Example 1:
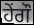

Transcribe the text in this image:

ਹੇਂਗੌ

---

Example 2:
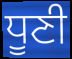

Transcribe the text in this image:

ਧੂਣੀ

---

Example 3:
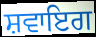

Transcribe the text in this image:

ਸ਼ਵਾਇਗ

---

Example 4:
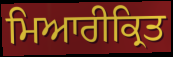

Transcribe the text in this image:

ਮਿਆਰੀਕ੍ਰਿਤ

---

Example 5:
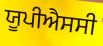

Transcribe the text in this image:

ਯੂਪੀਐਸਸੀ